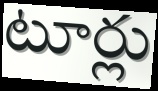
టూర్లు